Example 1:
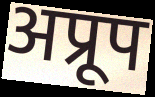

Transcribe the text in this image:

अप्रूप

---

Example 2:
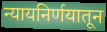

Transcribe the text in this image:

न्यायनिर्णयातून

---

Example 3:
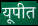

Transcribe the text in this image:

यूपीत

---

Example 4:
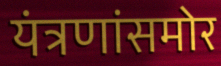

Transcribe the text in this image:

यंत्रणांसमोर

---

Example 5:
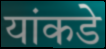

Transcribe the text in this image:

यांकडे